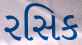
રસિક